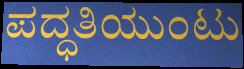
ಪದ್ಧತಿಯುಂಟು